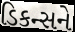
ડિકન્સને